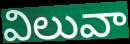
విలువా